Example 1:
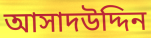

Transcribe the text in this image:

আসাদউদ্দিন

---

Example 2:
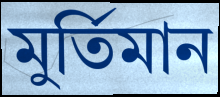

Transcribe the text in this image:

মুর্তিমান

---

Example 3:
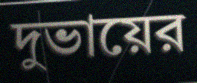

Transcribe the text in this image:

দুভায়ের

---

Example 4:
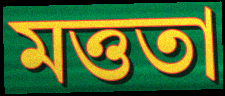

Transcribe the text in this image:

মত্ততা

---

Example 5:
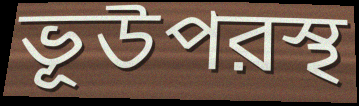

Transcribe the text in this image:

ভূউপরস্থ